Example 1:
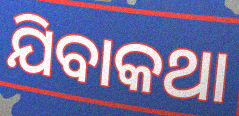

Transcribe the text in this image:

ଯିବାକଥା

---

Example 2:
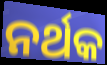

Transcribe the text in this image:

ନର୍ଥକ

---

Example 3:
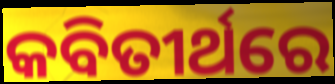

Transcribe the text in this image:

କବିତୀର୍ଥରେ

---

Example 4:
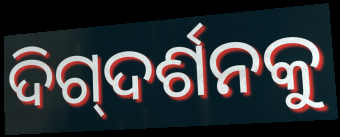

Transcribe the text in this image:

ଦିଗ୍‌ଦର୍ଶନକୁ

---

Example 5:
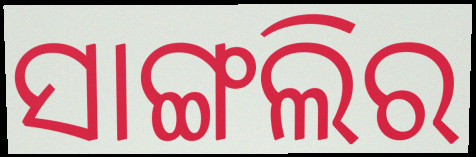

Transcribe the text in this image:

ସାଙ୍ଗଲିର